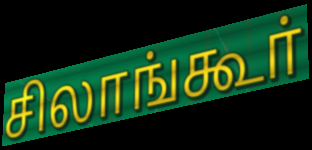
சிலாங்கூர்